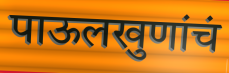
पाऊलखुणांचं